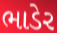
ભાડેર